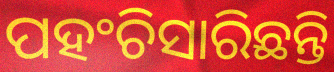
ପହଂଚିସାରିଛନ୍ତି